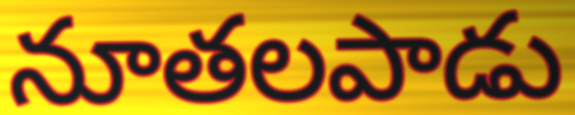
నూతలపాడు